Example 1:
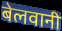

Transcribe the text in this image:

बेलवानी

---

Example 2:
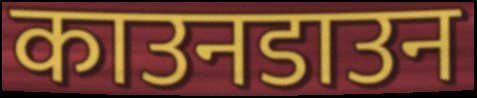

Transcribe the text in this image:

काउनडाउन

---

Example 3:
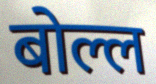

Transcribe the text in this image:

बोल्ल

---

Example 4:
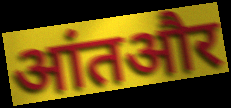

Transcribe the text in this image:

आंतऔर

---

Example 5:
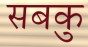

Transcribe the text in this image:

सबकु